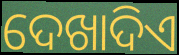
ଦେଖାଦିଏ